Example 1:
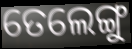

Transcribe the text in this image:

ତେଲେଙ୍ଗୁ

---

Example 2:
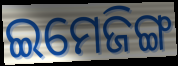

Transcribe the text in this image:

ଇମେଜିଙ୍ଗ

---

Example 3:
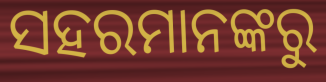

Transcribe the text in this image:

ସହରମାନଙ୍କରୁ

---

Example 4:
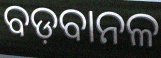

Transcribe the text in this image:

ବଡ଼ବାନଳ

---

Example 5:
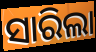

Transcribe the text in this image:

ସାରିଲା